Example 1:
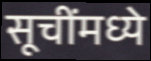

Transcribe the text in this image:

सूचींमध्ये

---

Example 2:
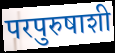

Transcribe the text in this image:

परपुरुषाशी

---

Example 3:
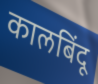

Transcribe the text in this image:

कालबिंदू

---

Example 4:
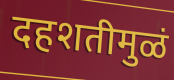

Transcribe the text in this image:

दहशतीमुळं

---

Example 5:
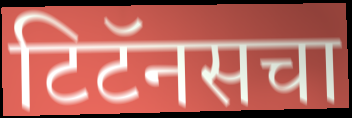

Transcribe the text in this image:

टिटॅनसचा